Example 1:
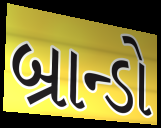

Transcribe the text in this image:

બ્રાન્ડો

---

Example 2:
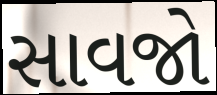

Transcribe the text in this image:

સાવજો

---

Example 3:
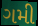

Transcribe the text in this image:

ગમી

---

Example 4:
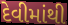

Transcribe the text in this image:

દેવીમાંથી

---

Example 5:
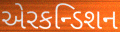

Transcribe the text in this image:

એરકન્ડિશન